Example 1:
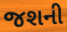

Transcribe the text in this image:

જશની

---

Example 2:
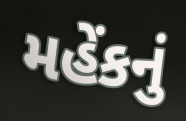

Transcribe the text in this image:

મહેંકનું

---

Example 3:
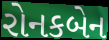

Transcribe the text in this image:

રોનકબેન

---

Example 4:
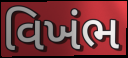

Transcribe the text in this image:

વિખંભ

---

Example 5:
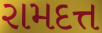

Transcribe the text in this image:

રામદત્ત